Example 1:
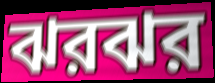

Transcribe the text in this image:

ঝরঝর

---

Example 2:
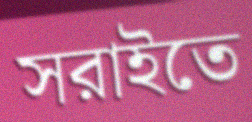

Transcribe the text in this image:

সরাইতে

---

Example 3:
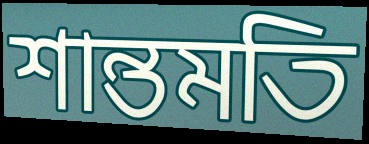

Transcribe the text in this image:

শান্তমতি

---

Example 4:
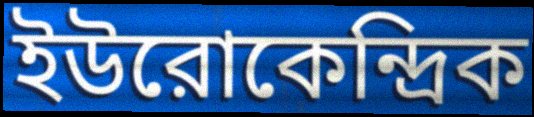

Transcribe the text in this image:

ইউরোকেন্দ্রিক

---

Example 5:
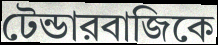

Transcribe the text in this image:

টেন্ডারবাজিকে